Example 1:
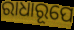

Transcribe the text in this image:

ରାଧାରୂପେ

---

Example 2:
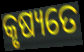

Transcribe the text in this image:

କୃଷ୍ୟତେ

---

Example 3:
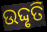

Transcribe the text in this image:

ଉଦ୍ଦୃତି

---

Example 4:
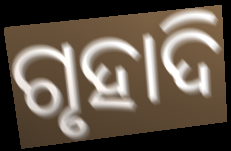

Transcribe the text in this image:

ଗୃହାଦି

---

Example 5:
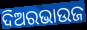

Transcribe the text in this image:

ଦିଅରଭାଉଜ